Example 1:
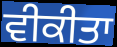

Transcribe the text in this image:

ਵੀਕੀਤਾ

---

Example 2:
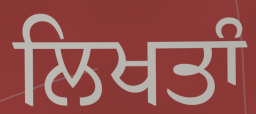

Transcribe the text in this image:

ਲਿਖਤਾੰ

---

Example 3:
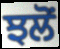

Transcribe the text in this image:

ਝਲੋਂ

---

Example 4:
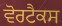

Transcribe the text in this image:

ਵੋਰਟੈਕਸ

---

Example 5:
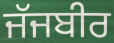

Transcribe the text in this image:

ਜੱਜਬੀਰ